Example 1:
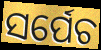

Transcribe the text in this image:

ସର୍ପେଚ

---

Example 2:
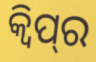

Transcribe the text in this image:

କ୍ଵିପ୍‌ର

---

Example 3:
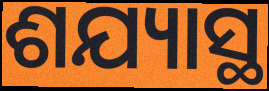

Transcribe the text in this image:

ଶଯ୍ୟାସ୍ଥ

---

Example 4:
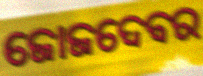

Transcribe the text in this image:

ଜୋଜଦେବର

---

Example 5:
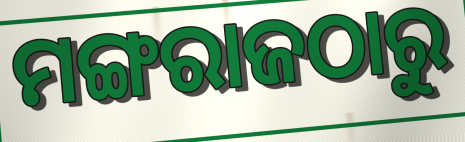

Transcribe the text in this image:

ମଙ୍ଗରାଜଠାରୁ